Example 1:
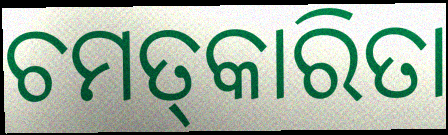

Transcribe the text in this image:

ଚମତ୍‌କାରିତା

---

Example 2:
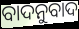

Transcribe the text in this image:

ବାଦନୁବାଦ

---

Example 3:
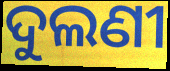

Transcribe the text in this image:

ଦୁଲଣୀ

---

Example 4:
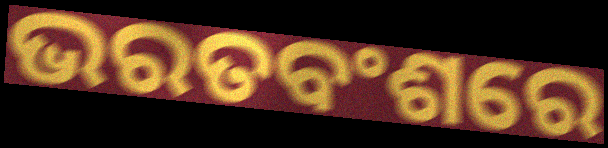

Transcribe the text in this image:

ଭରତବଂଶରେ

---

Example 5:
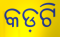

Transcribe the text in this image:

କଡ଼ଟି